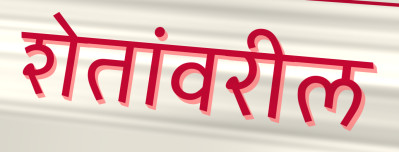
शेतांवरील